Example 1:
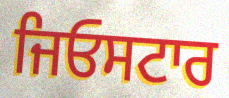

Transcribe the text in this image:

ਜਿਓਸਟਾਰ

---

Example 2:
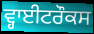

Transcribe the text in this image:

ਵ੍ਹਾਈਟਰੌਕਸ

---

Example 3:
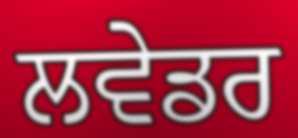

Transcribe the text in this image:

ਲਵੇਡਰ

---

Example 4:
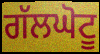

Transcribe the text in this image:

ਗੱਲਘੋਟੂ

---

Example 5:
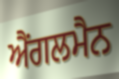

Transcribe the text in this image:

ਐਂਗਲਮੈਨ